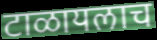
टाळायलाच